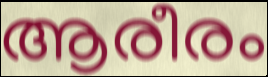
ആരീരം